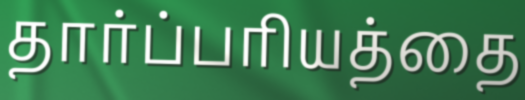
தார்ப்பரியத்தை